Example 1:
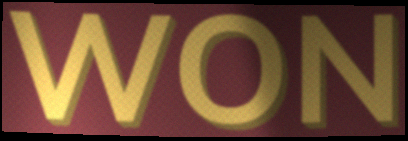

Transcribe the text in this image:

WON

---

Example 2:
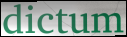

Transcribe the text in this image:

dictum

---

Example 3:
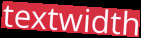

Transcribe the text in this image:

textwidth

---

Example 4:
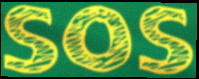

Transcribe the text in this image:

sos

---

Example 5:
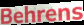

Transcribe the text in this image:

Behrens